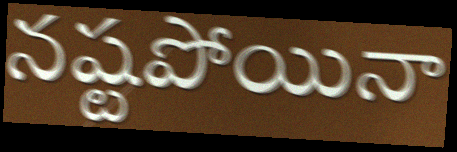
నష్టపోయినా